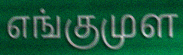
எங்குமுள